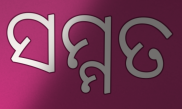
ସମ୍ମତ